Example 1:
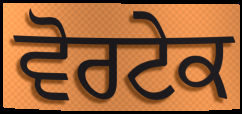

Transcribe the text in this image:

ਵੋਰਟੇਕ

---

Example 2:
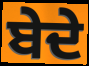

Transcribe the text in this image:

ਬੇਦੇ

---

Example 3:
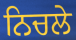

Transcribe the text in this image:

ਨਿਚਲੇ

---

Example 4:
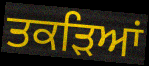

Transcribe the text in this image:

ਤਕੜਿਆਂ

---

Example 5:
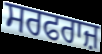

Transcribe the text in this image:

ਸਰਫਰਾਜ਼